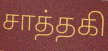
சாத்தகி